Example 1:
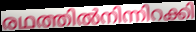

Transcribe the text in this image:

രഥത്തിൽനിന്നിറക്കി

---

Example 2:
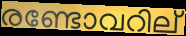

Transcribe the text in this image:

രണ്ടോവറില്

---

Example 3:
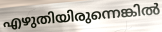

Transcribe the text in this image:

എഴുതിയിരുന്നെങ്കിൽ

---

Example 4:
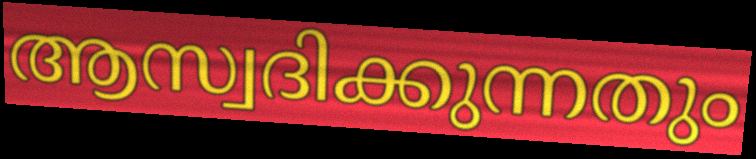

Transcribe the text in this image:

ആസ്വദിക്കുന്നതും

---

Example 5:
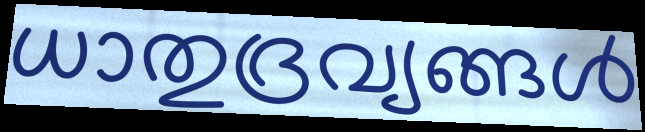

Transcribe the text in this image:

ധാതുദ്രവ്യങ്ങൾ